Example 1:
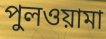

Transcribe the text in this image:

পুলওয়ামা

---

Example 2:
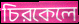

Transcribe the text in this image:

চিরকেলে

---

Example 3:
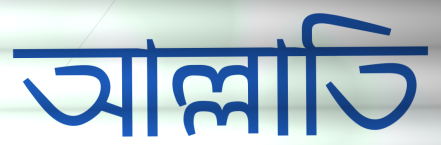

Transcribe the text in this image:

আল্লাতি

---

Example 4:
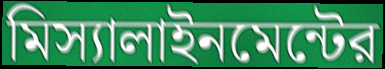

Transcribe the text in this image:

মিস্যালাইনমেন্টের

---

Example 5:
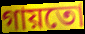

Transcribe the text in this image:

গায়তো